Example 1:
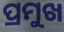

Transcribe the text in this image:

ପ୍ରମୁଖ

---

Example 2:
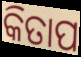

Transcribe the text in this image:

କିତାପ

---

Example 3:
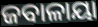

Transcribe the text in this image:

ଜବାଳାୟା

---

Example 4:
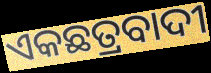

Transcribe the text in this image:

ଏକଛତ୍ରବାଦୀ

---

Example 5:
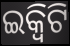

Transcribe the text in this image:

ଇକ୍ବିଟି